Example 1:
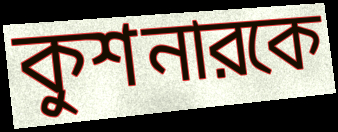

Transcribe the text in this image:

কুশনারকে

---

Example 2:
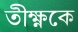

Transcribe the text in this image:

তীক্ষ্ণকে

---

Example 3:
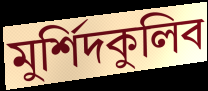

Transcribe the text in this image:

মুর্শিদকুলিব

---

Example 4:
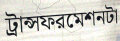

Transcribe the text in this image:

ট্রান্সফরমেশনটা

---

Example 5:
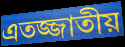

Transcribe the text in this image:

এতজ্জাতীয়